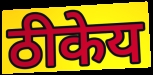
ठीकेय